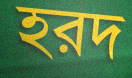
হরদ